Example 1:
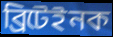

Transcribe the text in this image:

ব্ৰিটেইনক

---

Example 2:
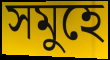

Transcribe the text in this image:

সমুহে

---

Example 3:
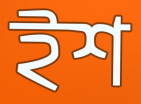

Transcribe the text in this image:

ইশ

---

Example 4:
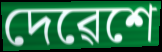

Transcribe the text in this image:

দেৱেশে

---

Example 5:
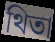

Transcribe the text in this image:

থিতা